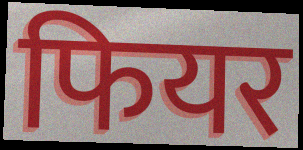
फियर